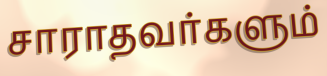
சாராதவர்களும்